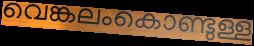
വെങ്കലംകൊണ്ടുള്ള